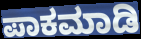
ಪಾಕಮಾಡಿ